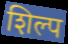
शिल्प